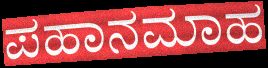
ಪಹಾನಮಾಹ